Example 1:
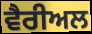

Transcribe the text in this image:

ਵੈਰੀਅਲ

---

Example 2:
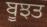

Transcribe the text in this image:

ਬੂਝਤ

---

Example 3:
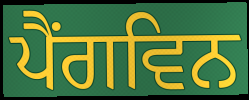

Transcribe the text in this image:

ਪੈਂਗਵਿਨ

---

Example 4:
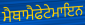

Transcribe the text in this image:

ਮੈਥਾਮੈਫੇਟੇਮਾਇਨ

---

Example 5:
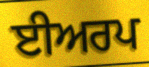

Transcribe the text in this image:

ਈਅਰਪ